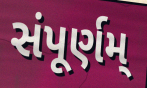
સંપૂર્ણમ્